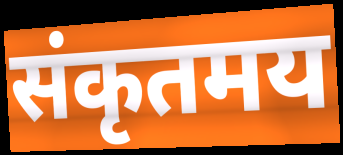
संकृतमय